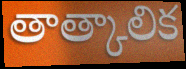
తాత్కాలిక